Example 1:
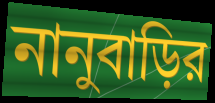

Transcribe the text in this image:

নানুবাড়ির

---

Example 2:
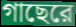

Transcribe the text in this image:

গাছেরে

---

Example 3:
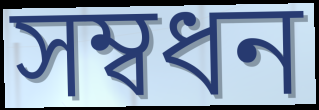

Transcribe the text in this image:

সম্বধন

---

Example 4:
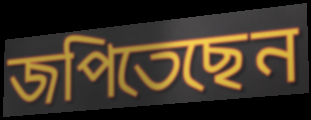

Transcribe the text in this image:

জপিতেছেন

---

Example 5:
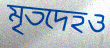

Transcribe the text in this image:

মৃতদেহও